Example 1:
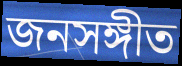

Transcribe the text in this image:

জনসঙ্গীত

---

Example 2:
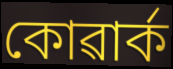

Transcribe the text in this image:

কোৱাৰ্ক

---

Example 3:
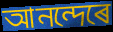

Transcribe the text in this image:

আনন্দেৰে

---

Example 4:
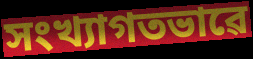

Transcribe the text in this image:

সংখ্যাগতভাৱে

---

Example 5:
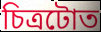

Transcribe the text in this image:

চিত্ৰটোত